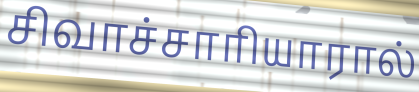
சிவாச்சாரியாரால்